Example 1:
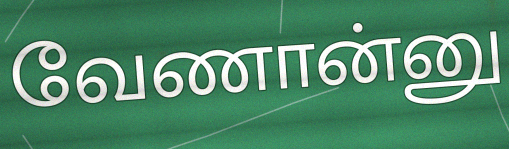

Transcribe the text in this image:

வேணான்னு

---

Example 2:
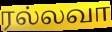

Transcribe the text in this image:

ரல்லவா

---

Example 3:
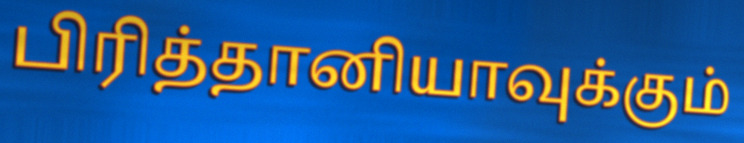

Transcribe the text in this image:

பிரித்தானியாவுக்கும்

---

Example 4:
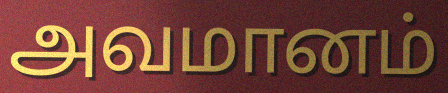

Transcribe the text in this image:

அவமானம்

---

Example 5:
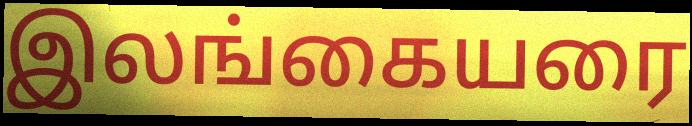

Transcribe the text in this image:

இலங்கையரை